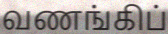
வணங்கிப்